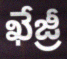
ఖేజ్రీ